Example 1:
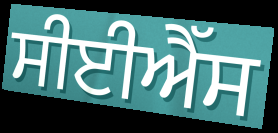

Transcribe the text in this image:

ਸੀਈਐੱਸ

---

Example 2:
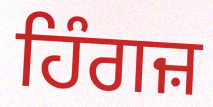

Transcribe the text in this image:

ਹਿੰਗਜ਼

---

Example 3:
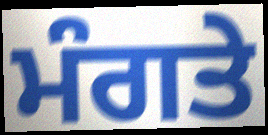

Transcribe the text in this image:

ਮੰਗਤੇ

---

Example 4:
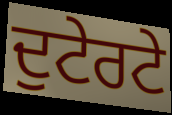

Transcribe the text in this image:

ਦੁਟੇਰਟੇ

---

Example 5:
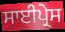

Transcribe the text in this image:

ਸਾਈਪ੍ਰੇਸ